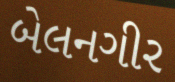
બેલનગીર